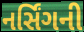
નર્સિંગની